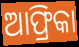
ଆଫ୍ରିକା